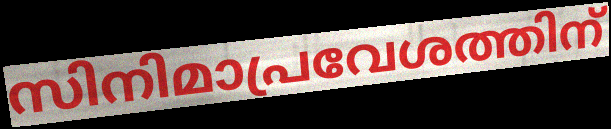
സിനിമാപ്രവേശത്തിന്